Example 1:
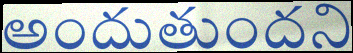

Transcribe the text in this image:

అందుతుందని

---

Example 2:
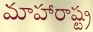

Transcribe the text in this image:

మాహారాష్ట్ర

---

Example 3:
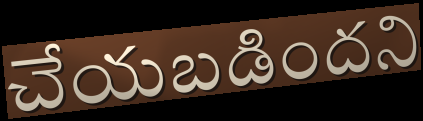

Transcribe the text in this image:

చేయబడిందని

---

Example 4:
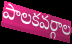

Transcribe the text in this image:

పాలకవర్గాల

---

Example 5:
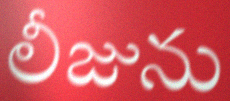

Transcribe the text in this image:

లీజును